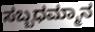
ಸಬ್ಬಧಮ್ಮಾನ